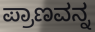
ಪ್ರಾಣವನ್ನ